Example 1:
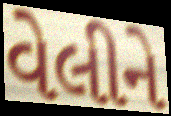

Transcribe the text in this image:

વેલીને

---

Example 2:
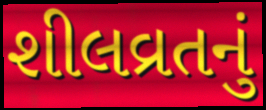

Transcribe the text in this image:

શીલવ્રતનું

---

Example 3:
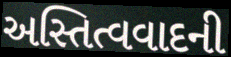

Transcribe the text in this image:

અસ્તિત્વવાદની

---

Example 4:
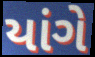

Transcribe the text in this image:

યાંગે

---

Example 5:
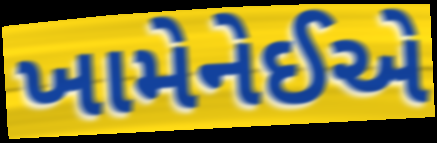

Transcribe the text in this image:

ખામેનેઈએ